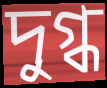
দুগ্ধ